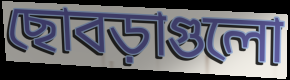
ছোবড়াগুলো